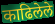
काढिलेले